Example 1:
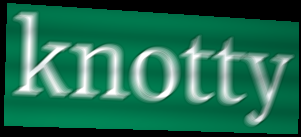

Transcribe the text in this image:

knotty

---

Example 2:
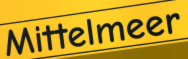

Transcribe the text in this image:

Mittelmeer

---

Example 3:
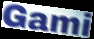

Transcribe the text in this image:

Gami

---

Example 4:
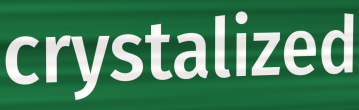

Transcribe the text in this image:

crystalized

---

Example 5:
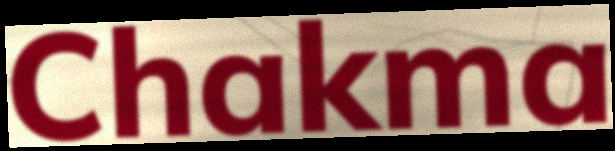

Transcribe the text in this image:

Chakma